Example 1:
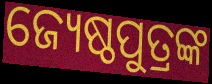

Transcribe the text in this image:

ଜ୍ୟେଷ୍ଠପୁତ୍ରଙ୍କ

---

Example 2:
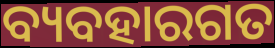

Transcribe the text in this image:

ବ୍ୟବହାରଗତ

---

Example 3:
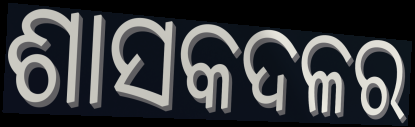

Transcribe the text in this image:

ଶାସକଦଳର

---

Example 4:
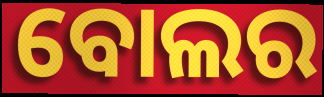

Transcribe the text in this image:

ବୋଲର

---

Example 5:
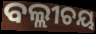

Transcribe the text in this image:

ବଲ୍ଲୀଚୟ